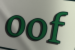
oof